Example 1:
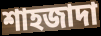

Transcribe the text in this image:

শাহজাদা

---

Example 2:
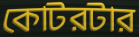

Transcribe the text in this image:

কোটরটার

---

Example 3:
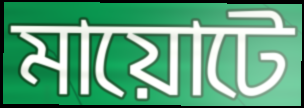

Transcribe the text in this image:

মায়োটে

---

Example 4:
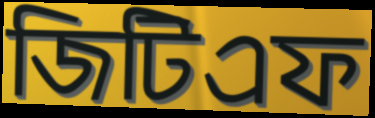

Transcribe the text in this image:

জিটিএফ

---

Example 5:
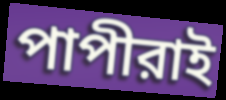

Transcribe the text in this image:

পাপীরাই